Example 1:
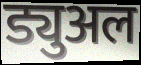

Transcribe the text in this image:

ड्युअल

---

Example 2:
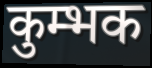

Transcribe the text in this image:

कुम्भक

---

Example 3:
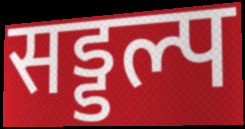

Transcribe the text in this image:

सड्डल्प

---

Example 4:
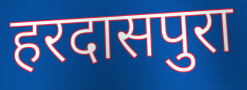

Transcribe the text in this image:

हरदासपुरा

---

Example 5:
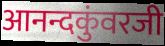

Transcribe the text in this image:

आनन्दकुंवरजी